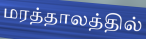
மரத்தாலத்தில்